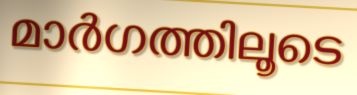
മാർഗത്തിലൂടെ